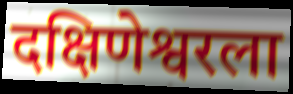
दक्षिणेश्वरला